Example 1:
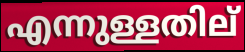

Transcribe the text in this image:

എന്നുള്ളതില്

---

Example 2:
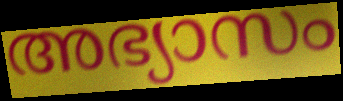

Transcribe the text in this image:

അഭ്യാസം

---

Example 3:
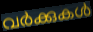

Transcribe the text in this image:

വർക്കുകൾ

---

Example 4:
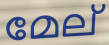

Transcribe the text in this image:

മേല്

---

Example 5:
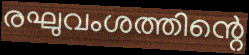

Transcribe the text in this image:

രഘുവംശത്തിന്റെ